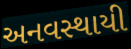
અનવસ્થાયી